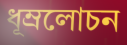
ধূম্রলোচন